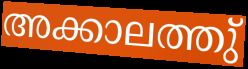
അക്കാലത്തു്